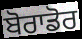
ਬੋਰਾਡੋਰ